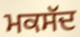
ਮਕਸੱਦ